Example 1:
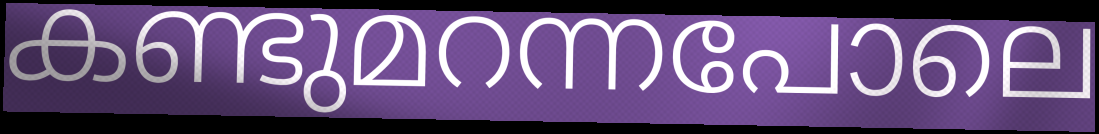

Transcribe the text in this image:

കണ്ടുമറന്നപോലെ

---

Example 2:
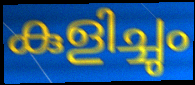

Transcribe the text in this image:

കുളിച്ചും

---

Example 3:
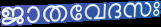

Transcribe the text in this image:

ജാതവേദസഃ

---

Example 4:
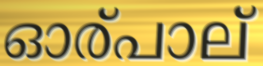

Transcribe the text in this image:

ഓര്പാല്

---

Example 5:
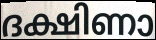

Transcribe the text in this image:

ദക്ഷിണാ